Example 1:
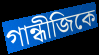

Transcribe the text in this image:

গান্ধীজিকে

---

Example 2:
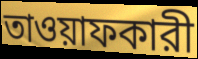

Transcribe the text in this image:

তাওয়াফকারী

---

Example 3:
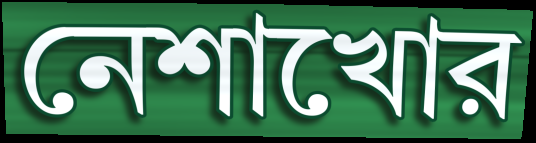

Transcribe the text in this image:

নেশাখোর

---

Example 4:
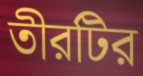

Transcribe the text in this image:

তীরটির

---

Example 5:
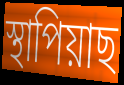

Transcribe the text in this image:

স্থাপিয়াছ